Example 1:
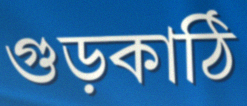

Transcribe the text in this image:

গুড়কাঠি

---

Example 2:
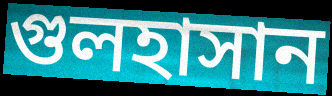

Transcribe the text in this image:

গুলহাসান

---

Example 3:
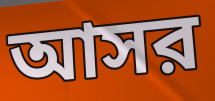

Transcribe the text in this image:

আসর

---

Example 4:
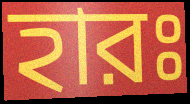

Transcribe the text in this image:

হারঃ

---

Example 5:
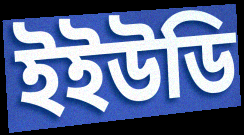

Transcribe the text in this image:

ইইউডি